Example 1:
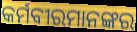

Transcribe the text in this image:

କର୍ମବୀରମାନଙ୍କର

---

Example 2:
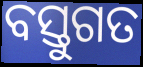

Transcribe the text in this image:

ବସ୍ତୁଗତ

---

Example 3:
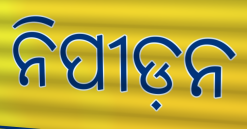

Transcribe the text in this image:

ନିପୀଡ଼ନ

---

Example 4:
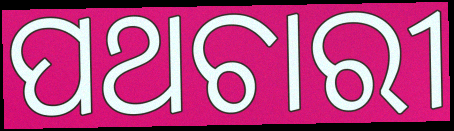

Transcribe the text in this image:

ପଥଚାରୀ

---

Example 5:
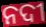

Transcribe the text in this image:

ନଦୀ